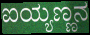
ಐಯ್ಯಣ್ಣನ